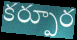
కర్పూర